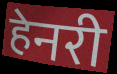
हेनरी